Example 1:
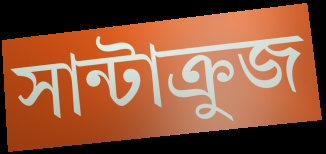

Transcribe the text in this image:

সান্টাক্রুজ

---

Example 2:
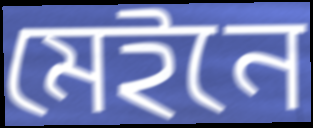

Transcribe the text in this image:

মেইনে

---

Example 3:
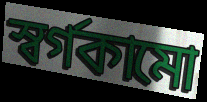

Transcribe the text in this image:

স্বর্গকামো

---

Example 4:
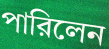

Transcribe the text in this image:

পারিলেন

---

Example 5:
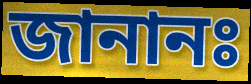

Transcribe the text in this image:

জানানঃ